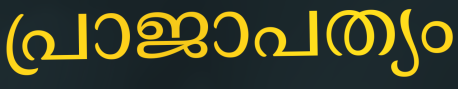
പ്രാജാപത്യം